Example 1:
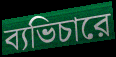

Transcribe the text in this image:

ব্যভিচারে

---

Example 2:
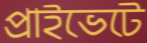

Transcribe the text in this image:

প্রাইভেটে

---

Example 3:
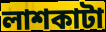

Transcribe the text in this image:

লাশকাটা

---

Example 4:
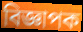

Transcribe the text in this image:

বিজ্ঞাপক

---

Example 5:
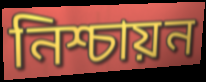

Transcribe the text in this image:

নিশ্চায়ন